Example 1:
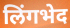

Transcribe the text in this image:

लिंगभेद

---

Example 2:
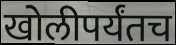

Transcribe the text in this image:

खोलीपर्यंतच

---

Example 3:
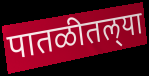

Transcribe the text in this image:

पातळीतल्या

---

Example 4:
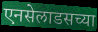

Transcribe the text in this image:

एनसेलाडसच्या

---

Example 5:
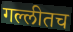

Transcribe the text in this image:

गल्लीतच